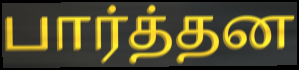
பார்த்தன